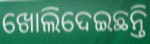
ଖୋଲିଦେଇଛନ୍ତି